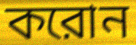
করোন